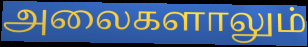
அலைகளாலும்